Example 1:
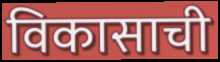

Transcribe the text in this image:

विकासाची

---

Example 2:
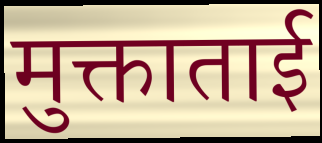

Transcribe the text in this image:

मुक्ताताई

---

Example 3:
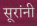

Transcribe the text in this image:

सूरांनी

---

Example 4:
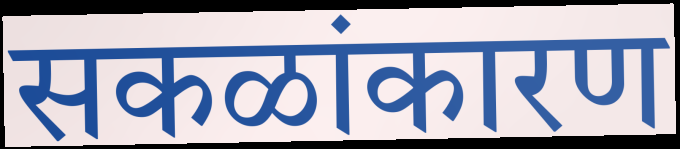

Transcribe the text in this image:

सकळांकारण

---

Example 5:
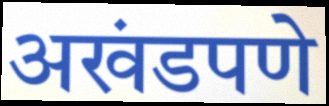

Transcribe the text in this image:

अखंडपणे